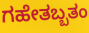
ಗಹೇತಬ್ಬತಂ